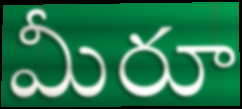
మీరూ